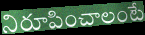
నిరూపించాలంటే